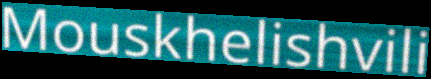
Mouskhelishvili